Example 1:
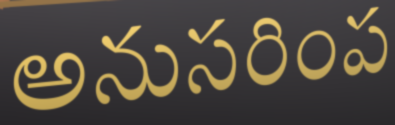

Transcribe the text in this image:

అనుసరింప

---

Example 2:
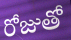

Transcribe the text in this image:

రోజుతో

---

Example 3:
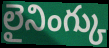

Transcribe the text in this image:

లైనింగ్కు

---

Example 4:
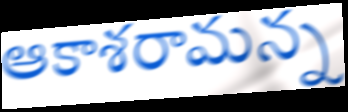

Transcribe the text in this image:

ఆకాశరామన్న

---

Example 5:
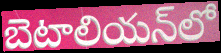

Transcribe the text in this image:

బెటాలియన్‌లో